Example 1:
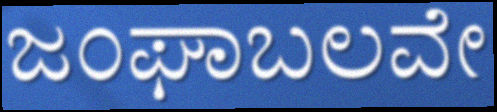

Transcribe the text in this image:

ಜಂಘಾಬಲವೇ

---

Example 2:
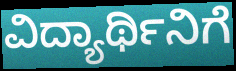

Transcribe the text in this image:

ವಿದ್ಯಾರ್ಥಿನಿಗೆ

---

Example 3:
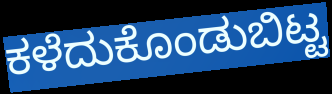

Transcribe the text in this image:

ಕಳೆದುಕೊಂಡುಬಿಟ್ಟ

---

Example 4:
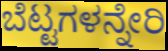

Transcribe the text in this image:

ಬೆಟ್ಟಗಳನ್ನೇರಿ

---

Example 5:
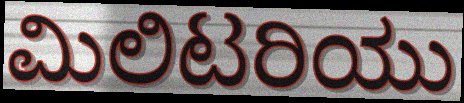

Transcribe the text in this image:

ಮಿಲಿಟರಿಯು